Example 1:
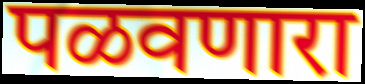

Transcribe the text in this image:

पळवणारा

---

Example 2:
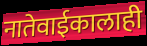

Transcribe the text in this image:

नातेवाईकालाही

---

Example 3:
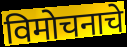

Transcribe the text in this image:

विमोचनाचे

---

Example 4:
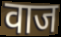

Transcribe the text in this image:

वाज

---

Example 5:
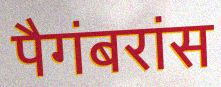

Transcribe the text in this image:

पैगंबरांस